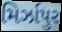
મિર્ઝાપુર